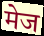
मेज